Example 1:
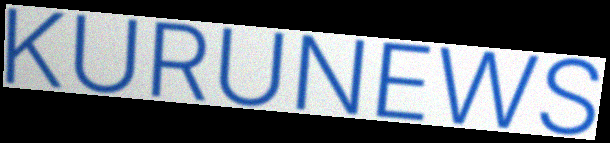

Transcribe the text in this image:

KURUNEWS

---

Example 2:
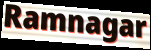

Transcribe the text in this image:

Ramnagar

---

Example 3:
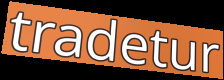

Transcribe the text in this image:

tradetur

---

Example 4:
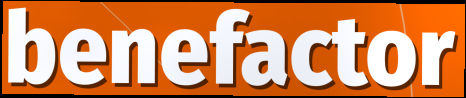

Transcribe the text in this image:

benefactor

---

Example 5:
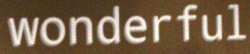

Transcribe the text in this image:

wonderful